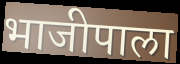
भाजीपाला